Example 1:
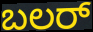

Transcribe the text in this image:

ಬಲರ್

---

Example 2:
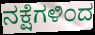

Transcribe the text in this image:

ನಕ್ಷೆಗಳಿಂದ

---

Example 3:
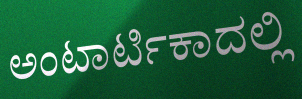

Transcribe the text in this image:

ಅಂಟಾರ್ಟಿಕಾದಲ್ಲಿ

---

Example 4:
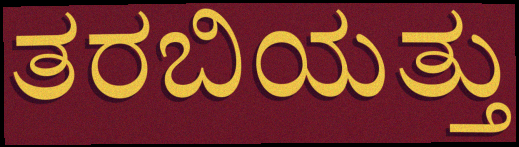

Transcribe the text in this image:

ತರಬಿಯತ್ತು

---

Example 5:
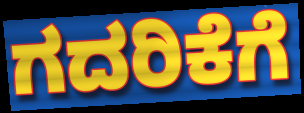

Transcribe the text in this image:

ಗದರಿಕೆಗೆ